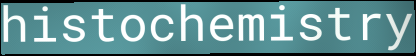
histochemistry